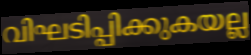
വിഘടിപ്പിക്കുകയല്ല